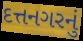
દત્તનગરનું